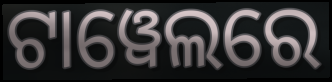
ଟାୱେଲରେ